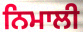
ਨਿਮਾਲੀ